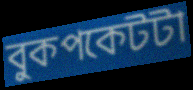
বুকপকেটটা